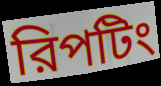
রিপটিং